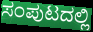
ಸಂಪುಟದಲ್ಲಿ